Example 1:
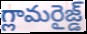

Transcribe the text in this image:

గ్లామరైజ్డ్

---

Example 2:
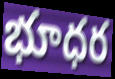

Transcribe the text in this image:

భూధర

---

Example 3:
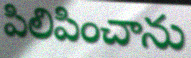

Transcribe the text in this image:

పిలిపించాను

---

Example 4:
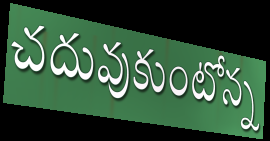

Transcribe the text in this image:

చదువుకుంటోన్న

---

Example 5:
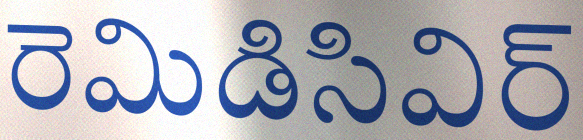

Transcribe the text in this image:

రెమిడిసివిర్